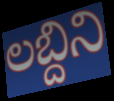
లబ్దిని